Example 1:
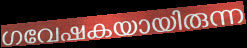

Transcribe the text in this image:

ഗവേഷകയായിരുന്ന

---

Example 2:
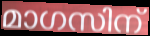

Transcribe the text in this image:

മാഗസിന്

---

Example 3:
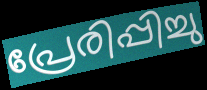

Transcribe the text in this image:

പ്രേരിപ്പിച്ചു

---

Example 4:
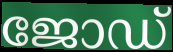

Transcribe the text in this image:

ജോഡ്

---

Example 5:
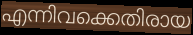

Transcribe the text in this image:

എന്നിവക്കെതിരായ